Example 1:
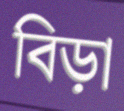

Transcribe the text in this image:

বিড়া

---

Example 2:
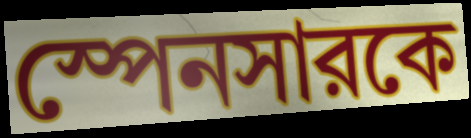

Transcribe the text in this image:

স্পেনসারকে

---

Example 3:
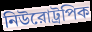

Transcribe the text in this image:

নিউরোট্রপিক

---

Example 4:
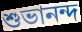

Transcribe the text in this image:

শুভানন্দ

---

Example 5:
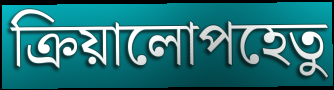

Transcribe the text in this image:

ক্রিয়ালোপহেতু